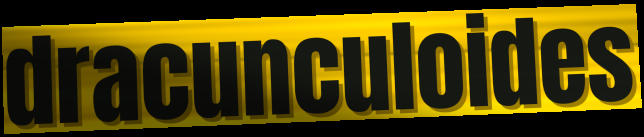
dracunculoides